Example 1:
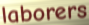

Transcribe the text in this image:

laborers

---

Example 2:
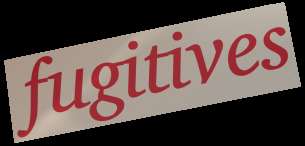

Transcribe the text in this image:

fugitives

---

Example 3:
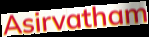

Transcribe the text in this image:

Asirvatham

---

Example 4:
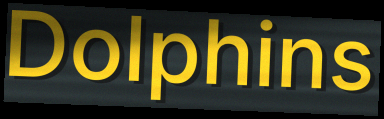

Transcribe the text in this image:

Dolphins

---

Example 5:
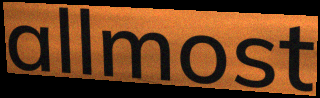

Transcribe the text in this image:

allmost